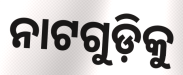
ନାଟଗୁଡ଼ିକୁ